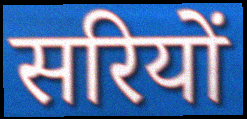
सरियों